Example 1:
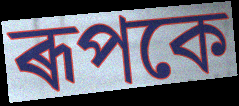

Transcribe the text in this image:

ৰূপকে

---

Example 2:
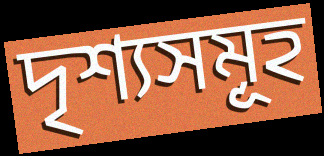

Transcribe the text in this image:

দৃশ্যসমূহ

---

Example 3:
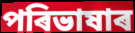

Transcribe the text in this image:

পৰিভাষাৰ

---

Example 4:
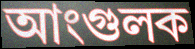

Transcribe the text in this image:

আংগুলক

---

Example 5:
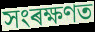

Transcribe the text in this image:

সংৰক্ষণত